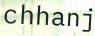
chhanj